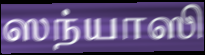
ஸந்யாஸி